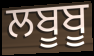
ਲਬੂਬੂ